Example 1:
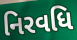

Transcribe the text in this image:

નિરવધિ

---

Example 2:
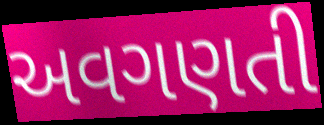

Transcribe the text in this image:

અવગણતી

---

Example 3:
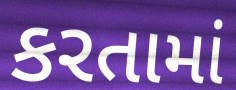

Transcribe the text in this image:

કરતામાં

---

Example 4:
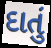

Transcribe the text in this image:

દાતું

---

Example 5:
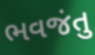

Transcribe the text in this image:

ભવજંતુ